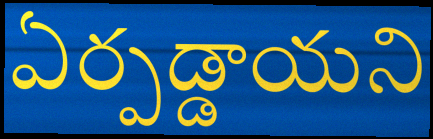
ఏర్పడ్డాయని